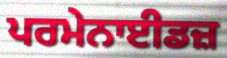
ਪਰਮੇਨਾਈਡਜ਼